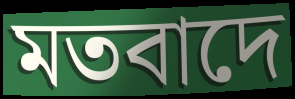
মতবাদে